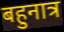
बहुनात्र